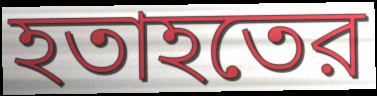
হতাহতের